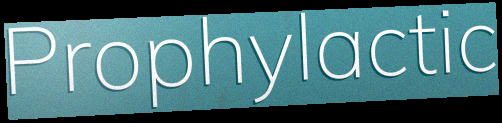
Prophylactic